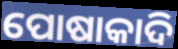
ପୋଷାକାଦି